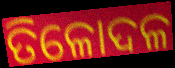
ତିଳୋଦଳ